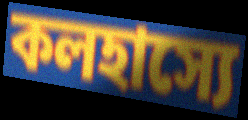
কলহাস্যে